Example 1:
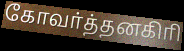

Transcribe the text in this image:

கோவர்த்தனகிரி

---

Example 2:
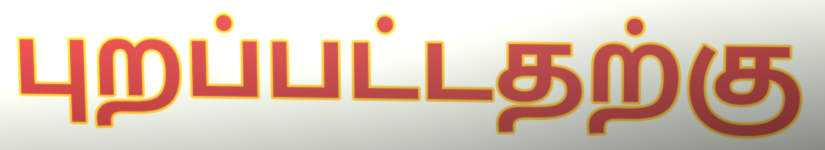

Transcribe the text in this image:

புறப்பட்டதற்கு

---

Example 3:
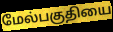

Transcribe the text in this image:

மேல்பகுதியை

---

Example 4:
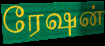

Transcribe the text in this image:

ரேஷன்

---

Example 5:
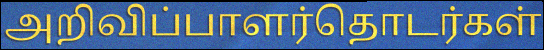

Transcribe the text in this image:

அறிவிப்பாளர்தொடர்கள்